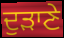
ਦੁੜਾਣੇ